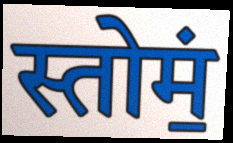
स्तोमं॒